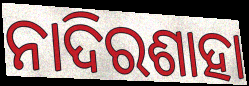
ନାଦିରଶାହା